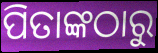
ପିତାଙ୍କଠାରୁ